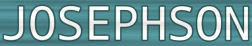
JOSEPHSON